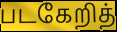
படகேறித்